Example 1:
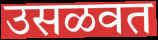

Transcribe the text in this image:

उसळवत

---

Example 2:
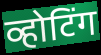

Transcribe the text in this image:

व्होटिंग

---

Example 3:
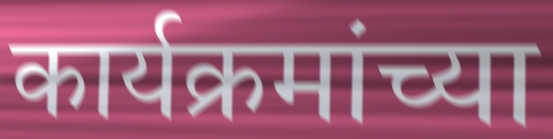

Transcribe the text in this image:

कार्यक्रमांच्या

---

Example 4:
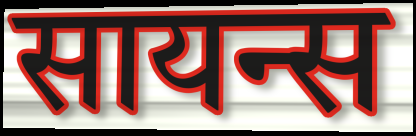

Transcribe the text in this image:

सायन्स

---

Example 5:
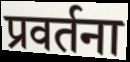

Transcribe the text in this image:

प्रवर्तना